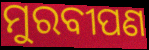
ମୁରବୀପଣ